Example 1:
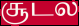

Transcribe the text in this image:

சூடல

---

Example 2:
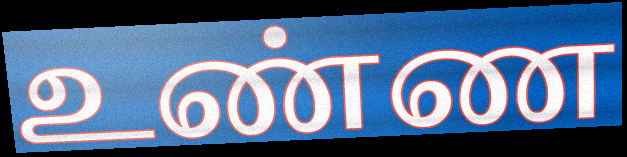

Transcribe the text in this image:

உண்ண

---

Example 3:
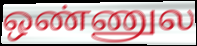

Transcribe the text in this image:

ஒண்ணுல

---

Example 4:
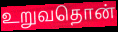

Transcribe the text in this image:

உறுவதொன்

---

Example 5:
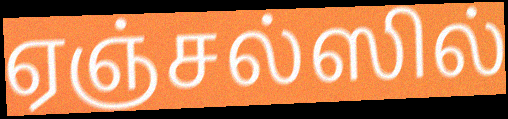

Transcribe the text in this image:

ஏஞ்சல்ஸில்